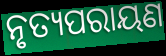
ନୃତ୍ୟପରାୟଣ